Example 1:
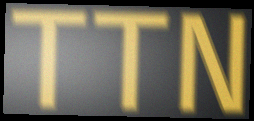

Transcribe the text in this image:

TTN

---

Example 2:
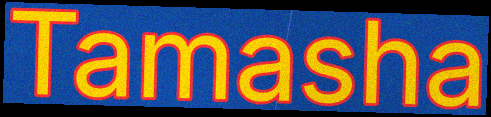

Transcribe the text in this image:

Tamasha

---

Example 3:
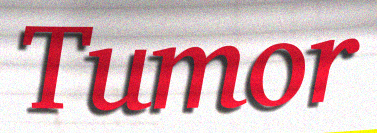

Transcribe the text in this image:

Tumor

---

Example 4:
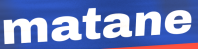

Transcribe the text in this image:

matane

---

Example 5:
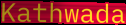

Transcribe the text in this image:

Kathwada